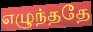
எழுந்ததே